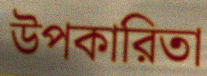
উপকারিতা